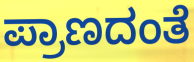
ಪ್ರಾಣದಂತೆ